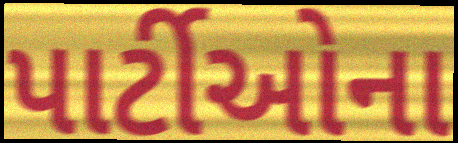
પાર્ટીઓના